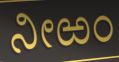
ನೀಱಂ